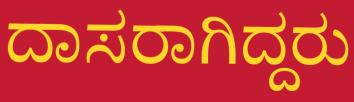
ದಾಸರಾಗಿದ್ದರು